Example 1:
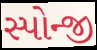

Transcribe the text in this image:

સ્પોન્જી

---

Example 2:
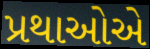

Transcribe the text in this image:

પ્રથાઓએ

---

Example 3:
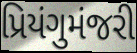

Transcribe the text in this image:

પ્રિયંગુમંજરી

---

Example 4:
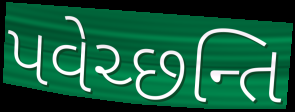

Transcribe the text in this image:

પવેચ્છન્તિ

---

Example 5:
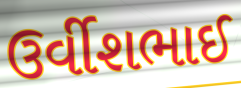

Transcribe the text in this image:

ઉર્વીશભાઈ